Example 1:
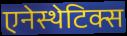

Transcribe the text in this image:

एनेस्थेटिक्स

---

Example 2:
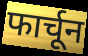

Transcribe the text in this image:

फार्चून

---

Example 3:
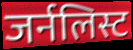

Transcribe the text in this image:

जर्नलिस्ट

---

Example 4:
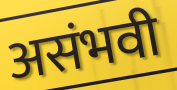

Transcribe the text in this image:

असंभवी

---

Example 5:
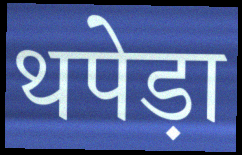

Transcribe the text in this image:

थपेड़ा